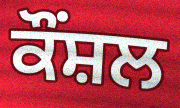
ਕੌਂਸ਼ਲ